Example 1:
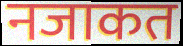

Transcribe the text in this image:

नजाकत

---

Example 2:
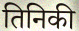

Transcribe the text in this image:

तिनिकी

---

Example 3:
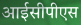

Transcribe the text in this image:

आईसीपीएस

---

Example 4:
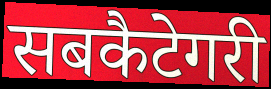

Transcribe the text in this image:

सबकैटेगरी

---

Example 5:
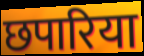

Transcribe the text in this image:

छपारिया